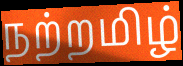
நற்றமிழ்